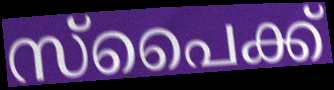
സ്പൈക്ക്